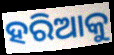
ହରିଆକୁ